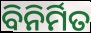
ବିନିର୍ମିତ